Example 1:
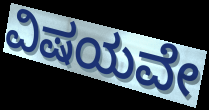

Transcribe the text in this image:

ವಿಷಯವೇ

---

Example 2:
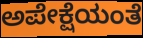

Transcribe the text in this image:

ಅಪೇಕ್ಷೆಯಂತೆ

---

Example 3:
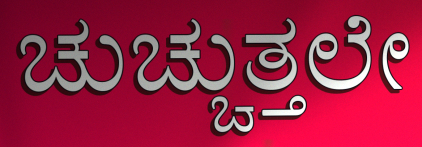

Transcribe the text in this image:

ಚುಚ್ಚುತ್ತಲೇ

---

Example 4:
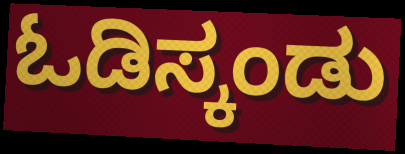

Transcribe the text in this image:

ಓಡಿಸ್ಕಂಡು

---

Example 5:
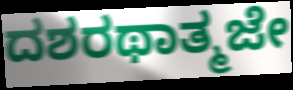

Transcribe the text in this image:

ದಶರಥಾತ್ಮಜೇ